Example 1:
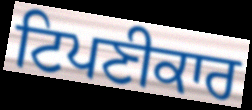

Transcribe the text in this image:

ਟਿਪਣੀਕਾਰ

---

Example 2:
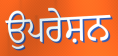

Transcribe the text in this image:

ਉਪਰੇਸ਼ਨ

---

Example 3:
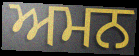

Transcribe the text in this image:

ਅਮਨ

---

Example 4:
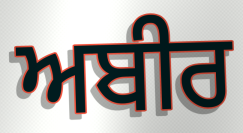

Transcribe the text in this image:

ਅਬੀਰ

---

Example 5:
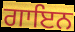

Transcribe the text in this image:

ਗਾਇਨ